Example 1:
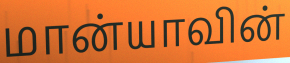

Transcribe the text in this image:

மான்யாவின்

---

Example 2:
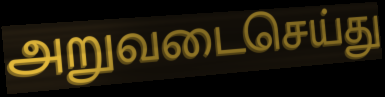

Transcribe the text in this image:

அறுவடைசெய்து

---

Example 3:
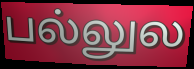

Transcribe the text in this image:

பல்லுல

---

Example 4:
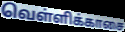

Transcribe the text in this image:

வெள்ளிக்காசை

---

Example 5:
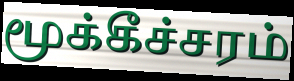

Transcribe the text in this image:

மூக்கீச்சரம்